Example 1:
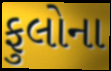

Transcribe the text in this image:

ફુલોના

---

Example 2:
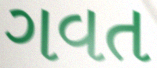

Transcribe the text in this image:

ગવત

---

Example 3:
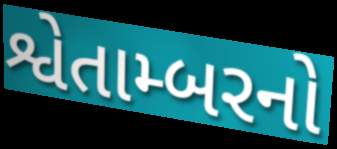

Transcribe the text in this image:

શ્વેતામ્બરનો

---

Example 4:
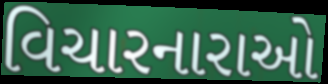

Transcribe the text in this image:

વિચારનારાઓ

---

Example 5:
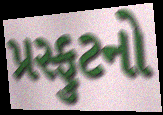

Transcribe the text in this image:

પ્રસ્ફુટનો